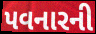
પવનારની